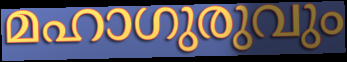
മഹാഗുരുവും